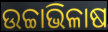
ଉଚ୍ଚାଭିଳାଷ